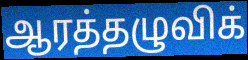
ஆரத்தழுவிக்